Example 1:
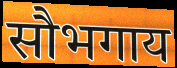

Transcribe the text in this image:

सौभगाय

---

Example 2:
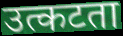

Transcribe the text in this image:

उत्कटता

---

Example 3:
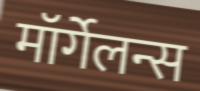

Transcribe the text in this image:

मॉर्गेलन्स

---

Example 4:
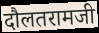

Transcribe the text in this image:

दौलतरामजी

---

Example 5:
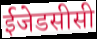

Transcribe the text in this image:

ईजेडसीसी